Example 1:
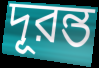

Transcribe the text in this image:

দূরন্ত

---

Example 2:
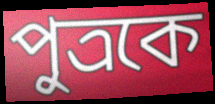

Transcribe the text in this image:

পুত্রকে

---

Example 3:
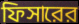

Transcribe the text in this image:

ফিসারের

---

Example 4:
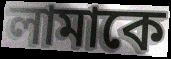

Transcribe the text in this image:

লামাকে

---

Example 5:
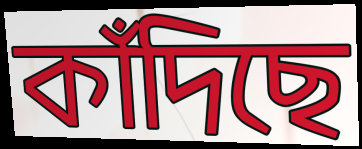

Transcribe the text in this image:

কাঁদিছে